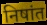
निषांत